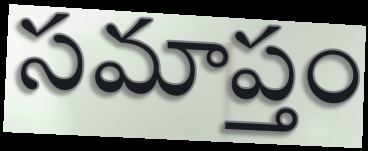
సమాప్తం